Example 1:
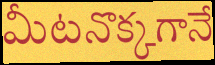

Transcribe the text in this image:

మీటనొక్కగానే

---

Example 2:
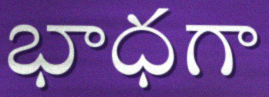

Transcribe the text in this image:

భాధగా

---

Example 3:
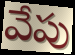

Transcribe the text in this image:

వేపు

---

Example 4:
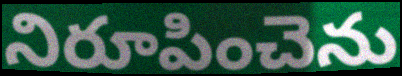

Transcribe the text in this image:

నిరూపించెను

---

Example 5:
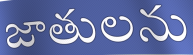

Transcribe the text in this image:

జాతులను